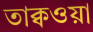
তাক্বওয়া